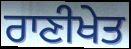
ਰਾਣੀਖੇਤ